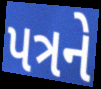
પત્રને